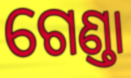
ଗେଣ୍ଡା